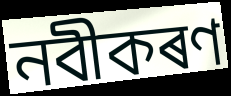
নবীকৰণ